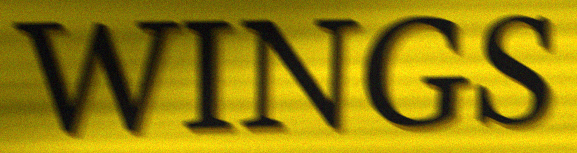
WINGS